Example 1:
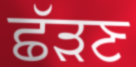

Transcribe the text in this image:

ਛੱੜਣ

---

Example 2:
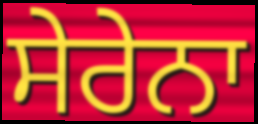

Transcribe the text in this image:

ਸੇਰੇਨਾ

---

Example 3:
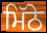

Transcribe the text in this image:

ਮਿੱਠੇ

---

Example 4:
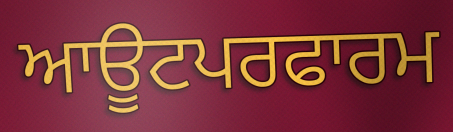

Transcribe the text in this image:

ਆਊਟਪਰਫਾਰਮ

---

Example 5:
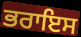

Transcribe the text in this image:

ਭਰਾਇਸ